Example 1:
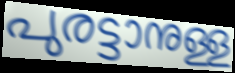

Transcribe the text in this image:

പുരട്ടാനുള്ള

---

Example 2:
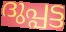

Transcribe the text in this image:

ദുപ്പട്ട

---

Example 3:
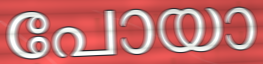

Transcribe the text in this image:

പോയാ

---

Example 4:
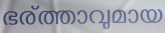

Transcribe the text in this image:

ഭര്ത്താവുമായ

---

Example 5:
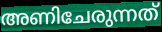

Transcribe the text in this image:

അണിചേരുന്നത്